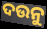
ଦଉନୁ